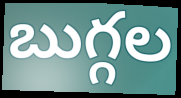
బుగ్గల